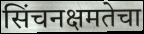
सिंचनक्षमतेचा